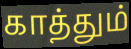
காத்தும்